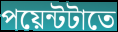
পয়েন্টটাতে